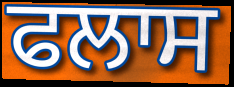
ਫਲਾਸ